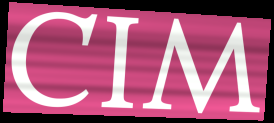
CIM